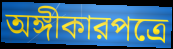
অঙ্গীকারপত্রে